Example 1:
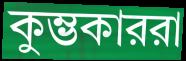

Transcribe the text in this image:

কুম্ভকাররা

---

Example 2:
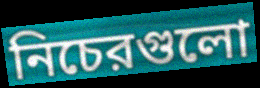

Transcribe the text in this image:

নিচেরগুলো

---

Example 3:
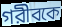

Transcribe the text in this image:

গরীবকে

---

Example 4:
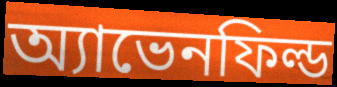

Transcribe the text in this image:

অ্যাভেনফিল্ড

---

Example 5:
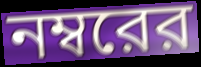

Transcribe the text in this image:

নম্বরের